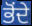
ਭੋਂਦੇ